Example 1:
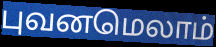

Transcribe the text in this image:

புவனமெலாம்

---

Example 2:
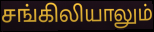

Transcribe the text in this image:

சங்கிலியாலும்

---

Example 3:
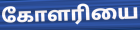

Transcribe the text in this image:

கோளரியை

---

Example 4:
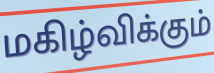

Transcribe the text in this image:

மகிழ்விக்கும்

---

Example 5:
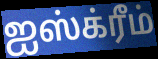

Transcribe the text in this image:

ஐஸ்க்ரீம்